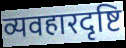
व्यवहारदृष्टि